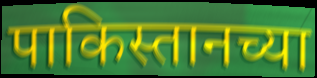
पाकिस्तानच्या